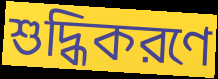
শুদ্ধিকরণে